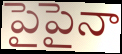
పైపైనా